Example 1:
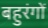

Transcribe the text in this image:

बहुरंगों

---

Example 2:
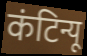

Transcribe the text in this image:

कंटिन्यू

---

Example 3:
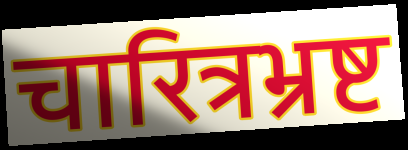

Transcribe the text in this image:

चारित्रभ्रष्ट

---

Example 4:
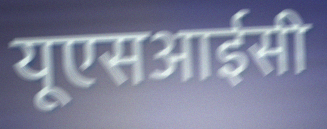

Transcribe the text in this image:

यूएसआईसी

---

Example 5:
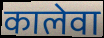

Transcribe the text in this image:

कालेवा